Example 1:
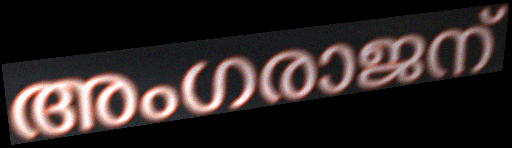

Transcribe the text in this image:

അംഗരാജന്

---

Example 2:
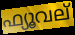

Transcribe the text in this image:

ഫ്യൂവല്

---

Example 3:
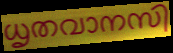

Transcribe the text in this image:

ധൃതവാനസി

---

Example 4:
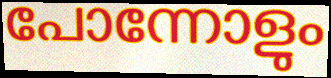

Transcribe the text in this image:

പോന്നോളും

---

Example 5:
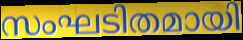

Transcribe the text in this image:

സംഘടിതമായി